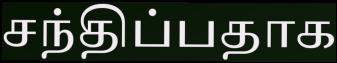
சந்திப்பதாக